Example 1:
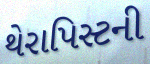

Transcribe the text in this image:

થેરાપિસ્ટની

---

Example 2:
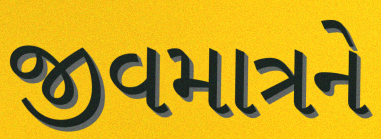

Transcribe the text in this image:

જીવમાત્રને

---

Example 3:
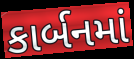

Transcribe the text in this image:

કાર્બનમાં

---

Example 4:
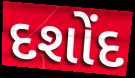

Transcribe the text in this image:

દશોંદ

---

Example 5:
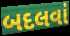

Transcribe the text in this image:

બદલવાં